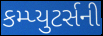
કમ્પ્યુટર્સની